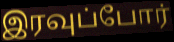
இரவுப்போர்